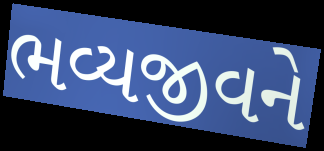
ભવ્યજીવને